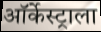
ऑर्केस्ट्राला